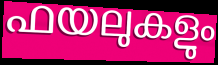
ഫയലുകളും